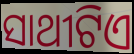
ସାଥୀଟିଏ